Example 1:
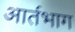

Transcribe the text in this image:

आर्तभाग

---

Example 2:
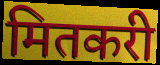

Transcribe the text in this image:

मितकरी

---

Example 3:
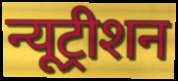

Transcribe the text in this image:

न्यूट्रीशन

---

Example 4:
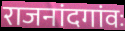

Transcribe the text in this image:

राजनांदगांवः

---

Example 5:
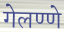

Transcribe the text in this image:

गेलण्णे